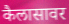
कैलासावर